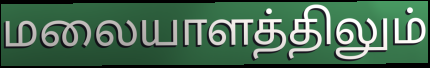
மலையாளத்திலும்